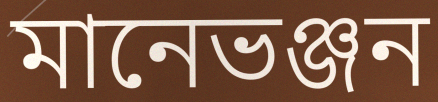
মানেভঞ্জন